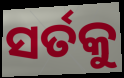
ସର୍ତକୁ